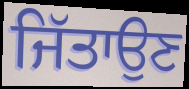
ਜਿੱਤਾਉਣ